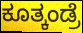
ಕೂತ್ಕಂಡ್ರೆ